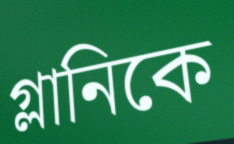
গ্লানিকে